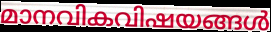
മാനവികവിഷയങ്ങൾ